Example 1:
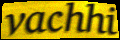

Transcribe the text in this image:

vachhi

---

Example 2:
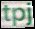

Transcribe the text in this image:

tpj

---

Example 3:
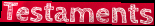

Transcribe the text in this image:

Testaments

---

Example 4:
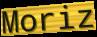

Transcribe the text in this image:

Moriz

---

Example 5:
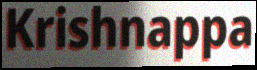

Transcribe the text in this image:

Krishnappa